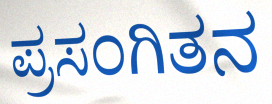
ಪ್ರಸಂಗಿತನ